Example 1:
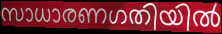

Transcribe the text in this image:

സാധാരണഗതിയിൽ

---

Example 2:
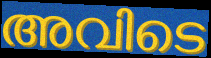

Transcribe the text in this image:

അവിടെ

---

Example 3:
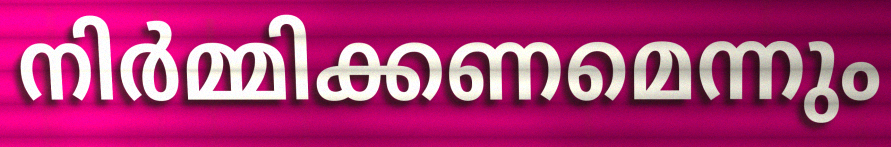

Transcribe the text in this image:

നിർമ്മിക്കണമെന്നും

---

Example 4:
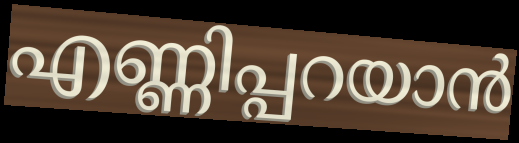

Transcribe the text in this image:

എണ്ണിപ്പറയാൻ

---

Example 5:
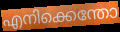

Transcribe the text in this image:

എനിക്കെന്തോ